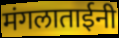
मंगलाताईनी